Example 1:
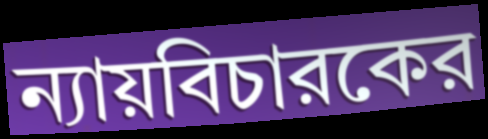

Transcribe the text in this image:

ন্যায়বিচারকের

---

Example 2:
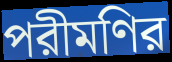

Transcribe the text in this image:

পরীমণির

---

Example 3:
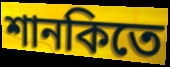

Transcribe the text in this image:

শানকিতে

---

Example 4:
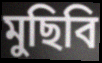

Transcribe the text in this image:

মুছিবি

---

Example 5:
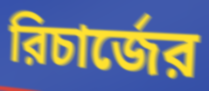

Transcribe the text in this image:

রিচার্জের